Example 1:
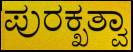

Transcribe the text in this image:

ಪುರಕ್ಖತ್ವಾ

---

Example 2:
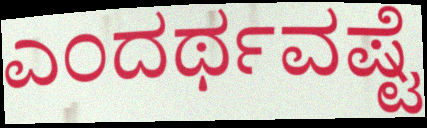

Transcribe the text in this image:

ಎಂದರ್ಥವಷ್ಟೆ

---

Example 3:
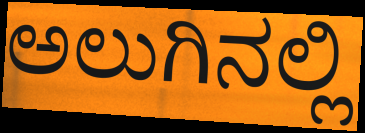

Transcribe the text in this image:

ಅಲುಗಿನಲ್ಲಿ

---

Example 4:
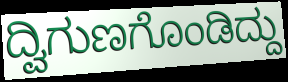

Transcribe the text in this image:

ದ್ವಿಗುಣಗೊಂಡಿದ್ದು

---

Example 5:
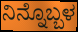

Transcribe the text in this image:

ನಿನ್ನೊಬ್ಬಳ